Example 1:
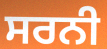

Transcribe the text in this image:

ਸਰਨੀ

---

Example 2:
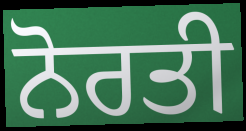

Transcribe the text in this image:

ਨੋਰਤੀ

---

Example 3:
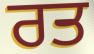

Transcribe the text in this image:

ਰਤ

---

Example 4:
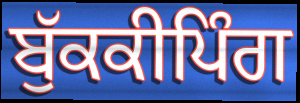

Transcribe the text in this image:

ਬੁੱਕਕੀਪਿੰਗ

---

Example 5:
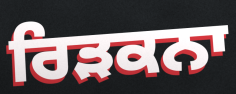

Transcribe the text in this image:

ਰਿੜਕਨਾ